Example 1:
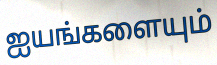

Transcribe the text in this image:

ஐயங்களையும்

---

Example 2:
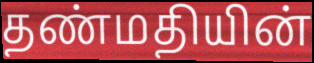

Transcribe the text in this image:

தண்மதியின்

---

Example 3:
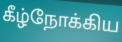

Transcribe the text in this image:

கீழ்நோக்கிய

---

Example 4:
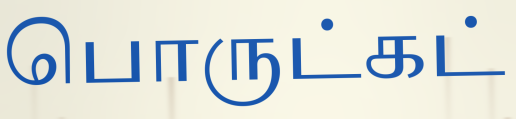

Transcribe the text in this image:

பொருட்கட்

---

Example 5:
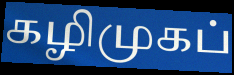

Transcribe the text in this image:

கழிமுகப்